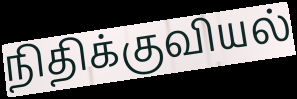
நிதிக்குவியல்